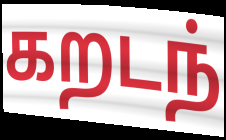
கறடந்